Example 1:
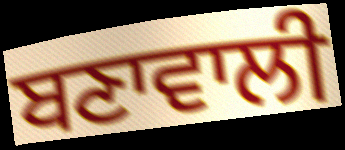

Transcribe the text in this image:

ਬਣਾਵਾਲੀ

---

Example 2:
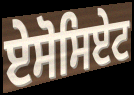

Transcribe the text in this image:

ਏਸੋਸਿਏਟ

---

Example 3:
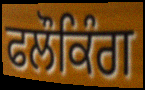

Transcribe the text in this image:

ਫਲੌਕਿੰਗ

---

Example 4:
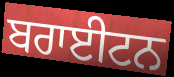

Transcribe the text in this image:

ਬਰਾਈਟਨ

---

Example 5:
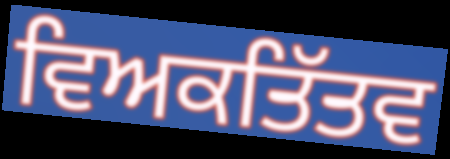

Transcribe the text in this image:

ਵਿਅਕਤਿੱਤਵ